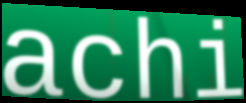
achi